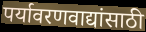
पर्यावरणवाद्यांसाठी